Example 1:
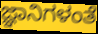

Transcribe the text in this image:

ಜ್ಞಾನಿಗಳಂತೆ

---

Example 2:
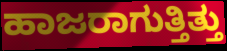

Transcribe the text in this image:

ಹಾಜರಾಗುತ್ತಿತ್ತು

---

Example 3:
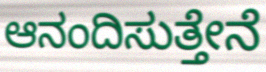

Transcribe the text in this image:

ಆನಂದಿಸುತ್ತೇನೆ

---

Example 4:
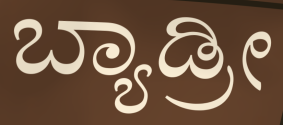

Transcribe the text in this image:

ಬ್ಯಾಡ್ರೀ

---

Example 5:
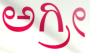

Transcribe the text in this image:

ಅಗ್ರೀ